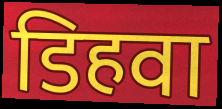
डिहवा